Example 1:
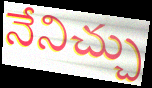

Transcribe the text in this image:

నేనిచ్చు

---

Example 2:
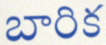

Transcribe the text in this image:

బారిక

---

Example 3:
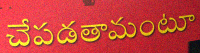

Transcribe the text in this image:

చేపడతామంటూ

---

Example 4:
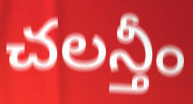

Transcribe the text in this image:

చలన్తీం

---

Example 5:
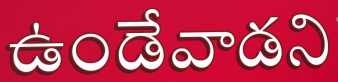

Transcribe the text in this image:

ఉండేవాడని